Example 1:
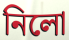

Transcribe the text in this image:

নিলো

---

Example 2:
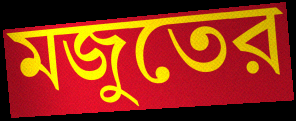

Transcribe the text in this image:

মজুতের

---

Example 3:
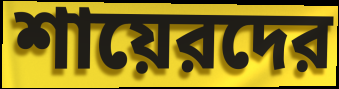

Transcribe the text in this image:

শায়েরদের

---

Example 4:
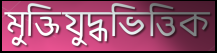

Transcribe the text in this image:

মুক্তিযুদ্ধভিত্তিক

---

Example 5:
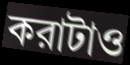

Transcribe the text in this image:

করাটাও